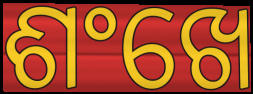
ଶଂଖେ